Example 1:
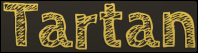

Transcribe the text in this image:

Tartan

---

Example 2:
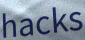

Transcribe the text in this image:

hacks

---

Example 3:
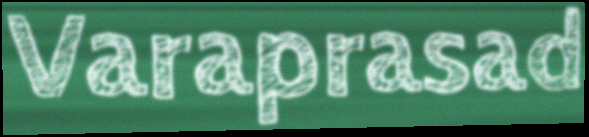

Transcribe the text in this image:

Varaprasad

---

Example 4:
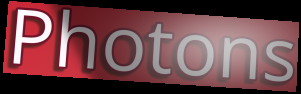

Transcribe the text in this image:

Photons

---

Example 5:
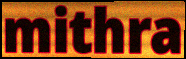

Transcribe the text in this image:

mithra